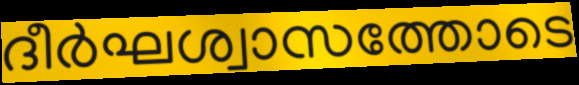
ദീർഘശ്വാസത്തോടെ